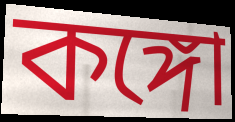
কঙ্গো